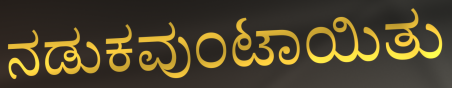
ನಡುಕವುಂಟಾಯಿತು